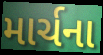
માર્ચના